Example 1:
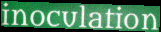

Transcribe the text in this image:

inoculation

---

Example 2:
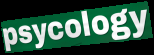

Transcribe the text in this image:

psycology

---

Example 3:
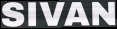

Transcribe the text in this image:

SIVAN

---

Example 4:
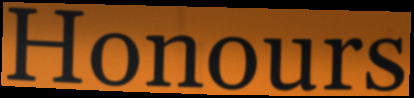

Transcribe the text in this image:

Honours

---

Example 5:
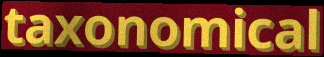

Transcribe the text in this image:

taxonomical